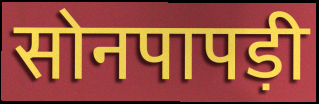
सोनपापड़ी